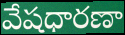
వేషధారణా